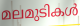
മലമുടികൾ